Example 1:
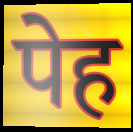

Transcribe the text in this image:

पेह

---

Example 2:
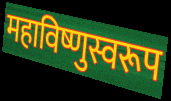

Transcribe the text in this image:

महाविष्णुस्वरूप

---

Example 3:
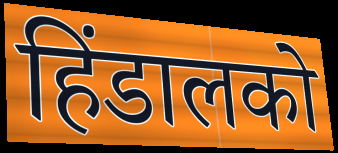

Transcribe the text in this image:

हिंडालको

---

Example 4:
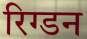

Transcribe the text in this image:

रिग्डन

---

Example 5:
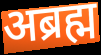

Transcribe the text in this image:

अब्रह्म